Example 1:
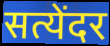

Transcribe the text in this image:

सत्येंदर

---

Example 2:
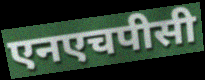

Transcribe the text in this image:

एनएचपीसी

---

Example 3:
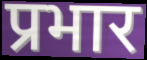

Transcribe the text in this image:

प्रभार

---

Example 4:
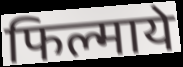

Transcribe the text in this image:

फिल्माये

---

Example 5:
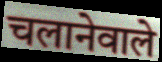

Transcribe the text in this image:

चलानेवाले